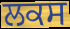
ਲਕਸ